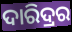
ଦାରିଦ୍ରର